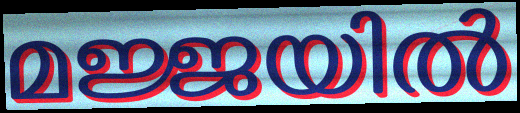
മജ്ജയിൽ